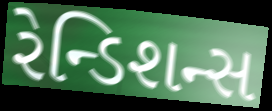
રેન્ડિશન્સ